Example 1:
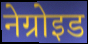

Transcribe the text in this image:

नेग्रोइड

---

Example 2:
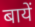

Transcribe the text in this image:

बायें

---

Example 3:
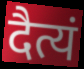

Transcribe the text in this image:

दैत्यं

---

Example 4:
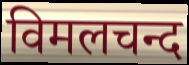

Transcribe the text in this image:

विमलचन्द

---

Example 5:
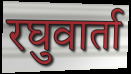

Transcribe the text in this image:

रघुवार्ता